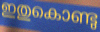
ഇതുകൊണ്ടു